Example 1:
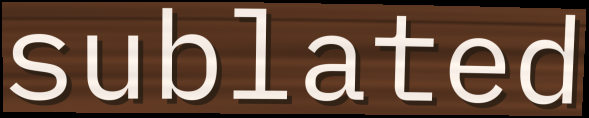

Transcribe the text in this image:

sublated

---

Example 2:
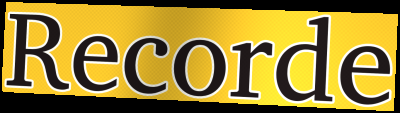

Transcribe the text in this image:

Recorde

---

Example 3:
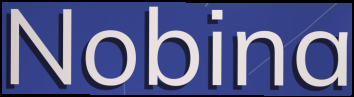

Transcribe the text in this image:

Nobina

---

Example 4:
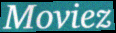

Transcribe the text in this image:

Moviez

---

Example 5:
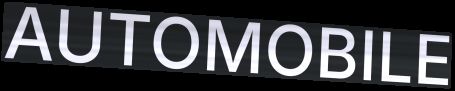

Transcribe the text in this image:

AUTOMOBILE